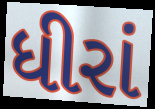
ધીરાં